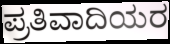
ಪ್ರತಿವಾದಿಯರ